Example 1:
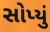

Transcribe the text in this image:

સોપ્યું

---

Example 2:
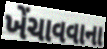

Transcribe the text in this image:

ખેંચાવવાના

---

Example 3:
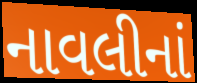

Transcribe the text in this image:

નાવલીનાં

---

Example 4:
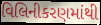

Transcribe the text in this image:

વિલિનીકરણમાંથી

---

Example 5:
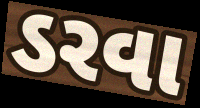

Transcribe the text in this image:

ડરવા